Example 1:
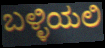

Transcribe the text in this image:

ಬಳ್ಳಿಯಲಿ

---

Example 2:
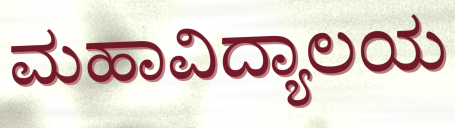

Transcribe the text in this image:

ಮಹಾವಿದ್ಯಾಲಯ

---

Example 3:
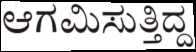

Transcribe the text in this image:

ಆಗಮಿಸುತ್ತಿದ್ದ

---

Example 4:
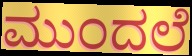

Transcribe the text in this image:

ಮುಂದಲೆ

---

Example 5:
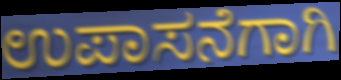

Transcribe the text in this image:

ಉಪಾಸನೆಗಾಗಿ